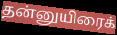
தன்னுயிரைக்